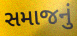
સમાજનું